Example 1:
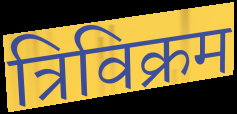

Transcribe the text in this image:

त्रिविक्रम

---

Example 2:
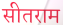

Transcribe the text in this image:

सीतराम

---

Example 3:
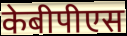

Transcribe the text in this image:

केबीपीएस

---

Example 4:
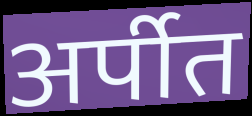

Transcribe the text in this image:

अर्पीत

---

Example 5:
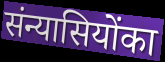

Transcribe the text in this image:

संन्यासियोंका